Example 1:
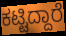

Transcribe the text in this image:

ಕಟ್ಟಿದ್ದಾರೆ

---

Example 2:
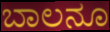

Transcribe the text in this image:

ಬಾಲನೂ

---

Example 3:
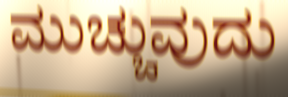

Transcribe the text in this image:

ಮುಚ್ಚುವುದು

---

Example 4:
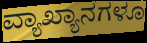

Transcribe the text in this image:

ವ್ಯಾಖ್ಯಾನಗಳೂ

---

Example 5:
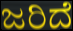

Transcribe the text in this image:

ಜರಿದೆ